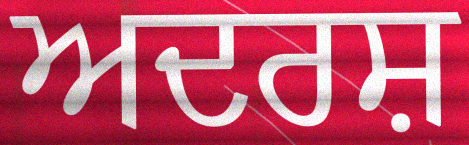
ਅਦਰਸ਼